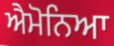
ਐਮੋਨਿਆ